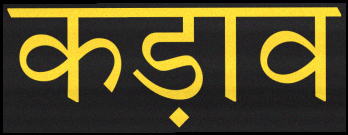
कड़ाव